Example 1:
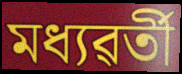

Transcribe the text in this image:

মধ্যৱৰ্তী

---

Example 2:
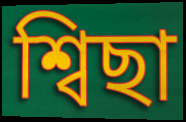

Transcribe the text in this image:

শ্বিছা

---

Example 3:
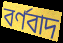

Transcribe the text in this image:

বৰ্ণবাদ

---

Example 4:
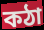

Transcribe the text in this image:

কঠা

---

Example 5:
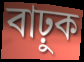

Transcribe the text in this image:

বাঢ়ুক